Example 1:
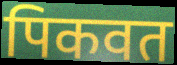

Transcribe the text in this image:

पिकवत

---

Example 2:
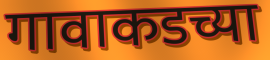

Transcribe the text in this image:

गावाकडच्या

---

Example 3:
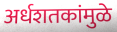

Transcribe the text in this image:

अर्धशतकांमुळे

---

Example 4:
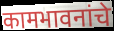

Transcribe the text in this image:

कामभावनांचे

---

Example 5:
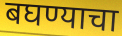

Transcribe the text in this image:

बघण्याचा